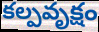
కల్పవృక్షం